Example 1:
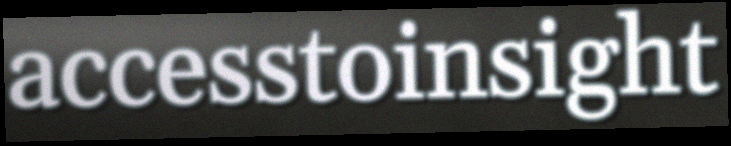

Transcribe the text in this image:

accesstoinsight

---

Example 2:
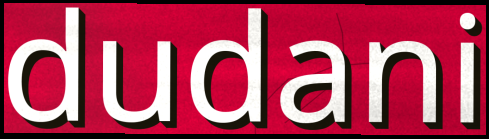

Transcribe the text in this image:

dudani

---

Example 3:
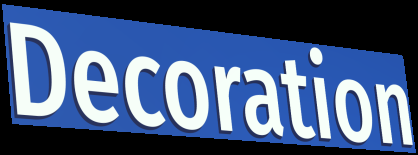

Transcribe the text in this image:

Decoration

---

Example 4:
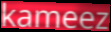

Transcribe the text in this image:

kameez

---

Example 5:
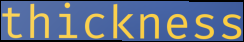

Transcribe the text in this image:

thickness